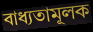
বাধ্যতামূলক